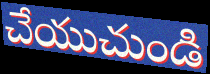
చేయుచుండి